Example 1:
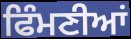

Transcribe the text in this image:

ਫਿੰਮਣੀਆਂ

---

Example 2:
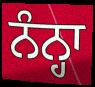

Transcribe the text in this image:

ਨੰਨ੍ਹਾ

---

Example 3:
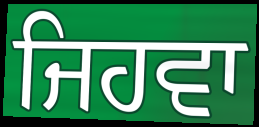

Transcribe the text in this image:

ਜਿਹਵਾ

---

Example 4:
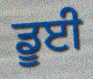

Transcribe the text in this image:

ਡੂਈ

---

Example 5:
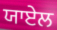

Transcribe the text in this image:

ਯਾਏਲ